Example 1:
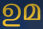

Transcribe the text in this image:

ഉമ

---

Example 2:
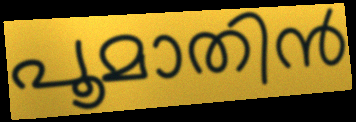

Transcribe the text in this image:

പൂമാതിൻ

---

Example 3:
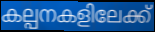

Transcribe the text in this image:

കല്പനകളിലേക്ക്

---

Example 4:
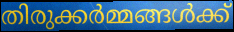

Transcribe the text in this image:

തിരുക്കർമ്മങ്ങൾക്ക്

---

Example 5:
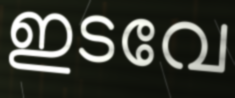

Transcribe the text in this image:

ഇടവേ